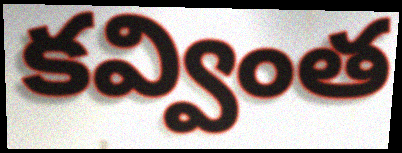
కవ్వింత